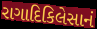
રાગાદિકિલેસાનં